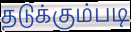
தடுக்கும்படி